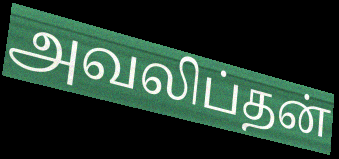
அவலிப்தன்